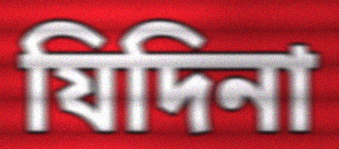
যিদিনা